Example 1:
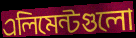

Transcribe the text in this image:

এলিমেন্টগুলো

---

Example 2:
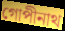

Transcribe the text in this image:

গোপীনাথ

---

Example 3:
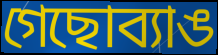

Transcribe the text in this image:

গেছোব্যাঙ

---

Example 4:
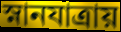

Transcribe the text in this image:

স্নানযাত্রায়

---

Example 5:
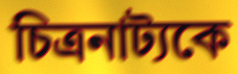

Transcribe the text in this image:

চিত্রনাট্যকে